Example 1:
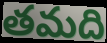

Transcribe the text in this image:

తమది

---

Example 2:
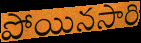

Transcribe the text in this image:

పోయినసారి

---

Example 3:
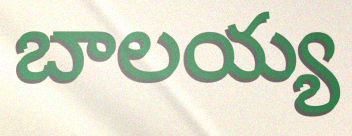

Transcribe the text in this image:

బాలయ్య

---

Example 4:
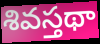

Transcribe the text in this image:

శివస్తథా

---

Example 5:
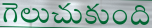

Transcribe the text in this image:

గెలుచుకుంది